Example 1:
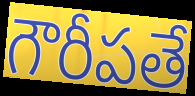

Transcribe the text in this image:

గౌరీపతే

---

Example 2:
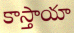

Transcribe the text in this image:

కాస్తాయా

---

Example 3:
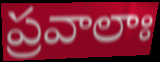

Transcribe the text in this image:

ప్రవాలాః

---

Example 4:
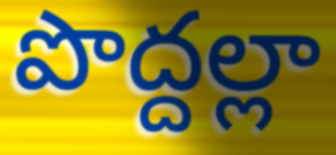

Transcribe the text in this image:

పొద్దల్లా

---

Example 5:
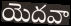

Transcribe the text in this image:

యెదవా